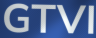
GTVI